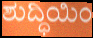
ಶುದ್ಧಿಯಿಂ